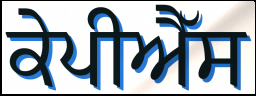
ਕੇਪੀਐੱਸ